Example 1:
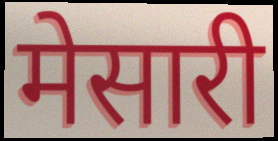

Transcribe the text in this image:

मेसारी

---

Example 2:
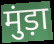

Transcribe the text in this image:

मुंड़ा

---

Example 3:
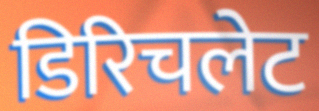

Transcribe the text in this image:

डिरिचलेट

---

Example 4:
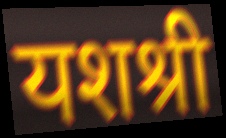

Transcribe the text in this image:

यशश्री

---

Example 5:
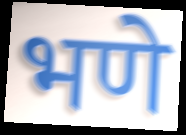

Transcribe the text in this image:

भणे